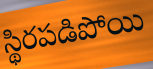
స్థిరపడిపోయి